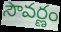
సౌవర్ణం